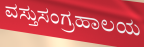
ವಸ್ತುಸಂಗ್ರಹಾಲಯ